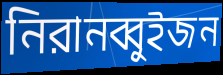
নিরানব্বুইজন